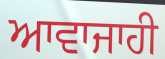
ਆਵਾਜਾਹੀ